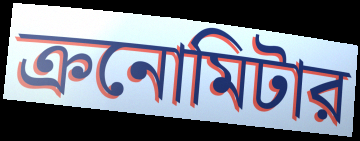
ক্রনোমিটার